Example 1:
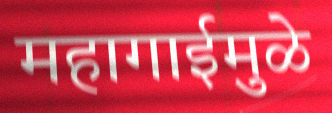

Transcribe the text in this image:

महागाईमुळे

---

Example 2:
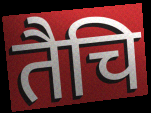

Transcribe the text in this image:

तैचि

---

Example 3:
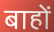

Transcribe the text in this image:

बाहों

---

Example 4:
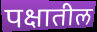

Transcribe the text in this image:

पक्षातील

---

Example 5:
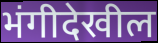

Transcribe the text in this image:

भंगीदेखील